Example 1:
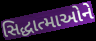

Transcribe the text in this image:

સિદ્ધાત્માઓને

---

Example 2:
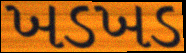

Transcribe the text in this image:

ખડખડ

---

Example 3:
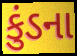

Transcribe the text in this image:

કુંડના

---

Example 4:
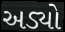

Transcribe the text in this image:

અડ્યો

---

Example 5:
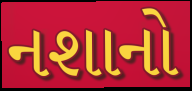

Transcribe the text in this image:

નશાનો